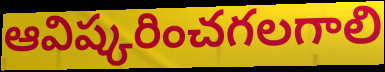
ఆవిష్కరించగలగాలి